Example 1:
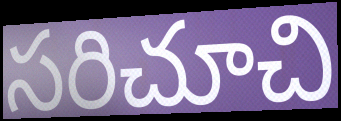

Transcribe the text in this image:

సరిచూచి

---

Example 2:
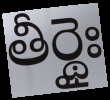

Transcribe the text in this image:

తీర్థైః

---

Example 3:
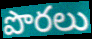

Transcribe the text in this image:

పొరలు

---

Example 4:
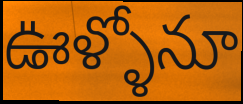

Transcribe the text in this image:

ఊళ్ళోనూ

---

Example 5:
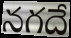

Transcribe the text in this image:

నగదే